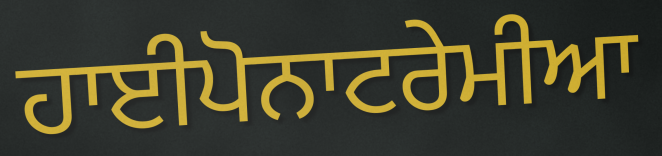
ਹਾਈਪੋਨਾਟਰੇਮੀਆ